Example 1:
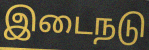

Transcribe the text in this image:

இடைநடு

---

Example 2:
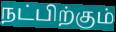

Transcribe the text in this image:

நட்பிற்கும்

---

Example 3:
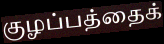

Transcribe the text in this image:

குழப்பத்தைக்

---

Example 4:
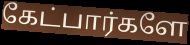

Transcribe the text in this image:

கேட்பார்களே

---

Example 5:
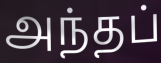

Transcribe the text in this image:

அந்தப்